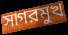
সাগরমুখ